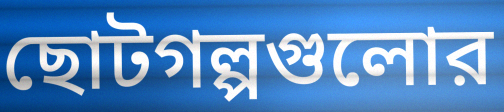
ছোটগল্পগুলোর